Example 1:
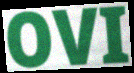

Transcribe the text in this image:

OVI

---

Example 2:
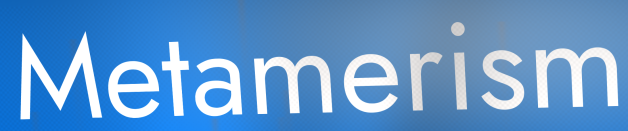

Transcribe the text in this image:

Metamerism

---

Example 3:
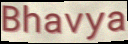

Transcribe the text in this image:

Bhavya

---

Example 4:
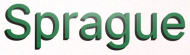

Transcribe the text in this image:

Sprague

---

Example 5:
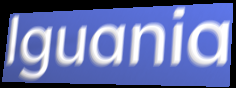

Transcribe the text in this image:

Iguania